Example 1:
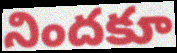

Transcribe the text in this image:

నిందకూ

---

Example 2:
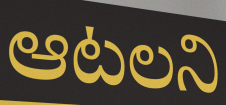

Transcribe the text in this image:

ఆటలని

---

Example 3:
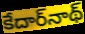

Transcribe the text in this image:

కేదార్‌నాథ్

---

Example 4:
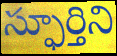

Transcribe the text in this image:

స్ఫూర్తిని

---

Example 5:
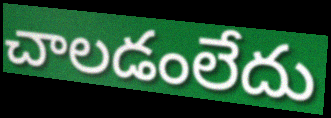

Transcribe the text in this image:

చాలడంలేదు